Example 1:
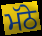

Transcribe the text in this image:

ਮੱਠੇ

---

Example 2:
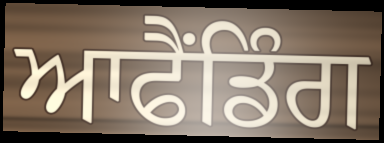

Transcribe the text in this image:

ਆਫੈਂਡਿੰਗ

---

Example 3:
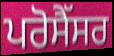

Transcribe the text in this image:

ਪਰੋਸੈੱਸਰ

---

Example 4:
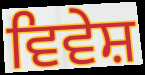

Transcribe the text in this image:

ਵਿਵੇਸ਼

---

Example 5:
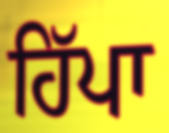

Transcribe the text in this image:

ਹਿੱਪਾ